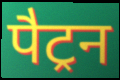
पैट्रन